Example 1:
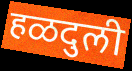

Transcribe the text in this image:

हळदुली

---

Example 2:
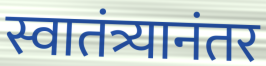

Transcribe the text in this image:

स्वातंत्र्यानंतर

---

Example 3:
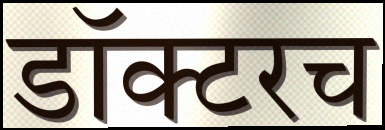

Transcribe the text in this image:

डॉक्टरच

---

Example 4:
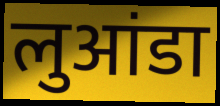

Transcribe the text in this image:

लुआंडा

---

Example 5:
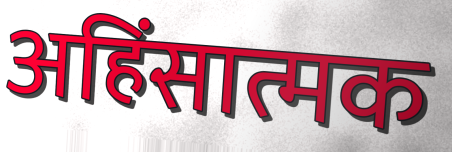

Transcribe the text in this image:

अहिंसात्मक